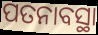
ପତନାବସ୍ଥା